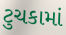
ટુચકામાં